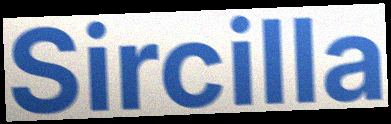
Sircilla